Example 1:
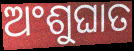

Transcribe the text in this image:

ଅଂଶୁଘାତ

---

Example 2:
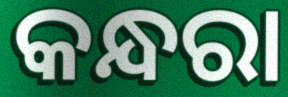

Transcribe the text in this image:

କନ୍ଧରା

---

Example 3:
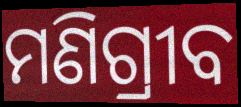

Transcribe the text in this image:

ମଣିଗ୍ରୀବ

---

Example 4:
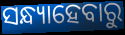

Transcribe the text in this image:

ସନ୍ଧ୍ୟାହେବାରୁ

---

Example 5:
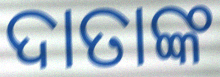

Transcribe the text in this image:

ଦାତାଙ୍କ